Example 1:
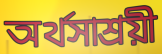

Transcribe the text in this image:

অর্থসাশ্রয়ী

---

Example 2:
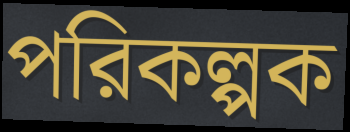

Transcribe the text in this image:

পরিকল্পক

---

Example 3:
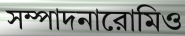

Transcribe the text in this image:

সম্পাদনারোমিও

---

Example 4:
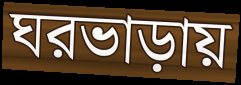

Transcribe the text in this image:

ঘরভাড়ায়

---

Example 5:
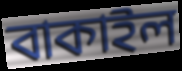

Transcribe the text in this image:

বাকাইল